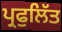
ਪ੍ਰਫੁਲਿੱਤ